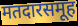
मतदारसमूह